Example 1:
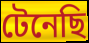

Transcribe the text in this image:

টেনেছি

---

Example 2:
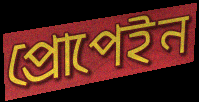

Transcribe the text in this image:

প্রোপেইন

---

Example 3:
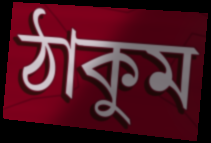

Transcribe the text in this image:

ঠাকুম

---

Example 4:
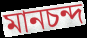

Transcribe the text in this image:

মানচন্দ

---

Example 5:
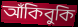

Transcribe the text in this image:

আঁকিবুকি